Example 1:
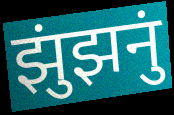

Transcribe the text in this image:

झुंझनुं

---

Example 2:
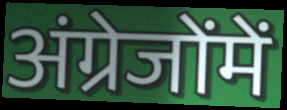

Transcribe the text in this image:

अंग्रेजोंमें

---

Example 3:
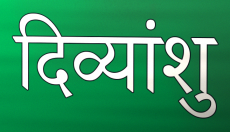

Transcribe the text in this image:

दिव्यांशु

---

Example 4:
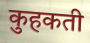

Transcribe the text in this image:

कुहकती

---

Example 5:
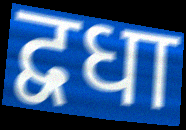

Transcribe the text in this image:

द्वधा